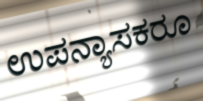
ಉಪನ್ಯಾಸಕರೂ